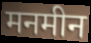
मनमीन